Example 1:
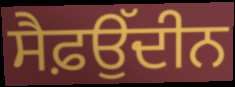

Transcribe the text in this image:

ਸੈਫ਼ਉੱਦੀਨ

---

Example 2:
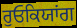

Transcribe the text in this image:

ਰੁਓਕਿਯਾਂਗ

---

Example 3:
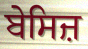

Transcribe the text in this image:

ਬੇਸਿਜ਼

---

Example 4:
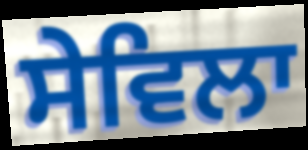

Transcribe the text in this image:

ਸੇਵਿਲਾ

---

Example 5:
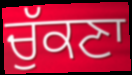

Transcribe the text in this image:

ਚੁੱਕਣਾ